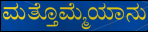
ಮತ್ತೊಮ್ಮೆಯಾನು